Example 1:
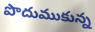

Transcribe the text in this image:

పొదుముకున్న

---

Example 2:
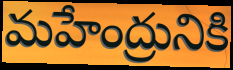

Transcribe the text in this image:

మహేంద్రునికి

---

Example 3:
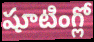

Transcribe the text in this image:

షూటింగ్లో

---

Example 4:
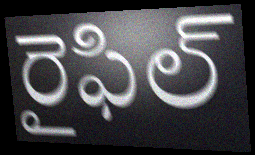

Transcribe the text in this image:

రైఫిల్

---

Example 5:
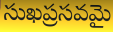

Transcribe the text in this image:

సుఖప్రసవమై